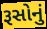
રૂસોનું